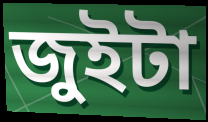
জুইটা